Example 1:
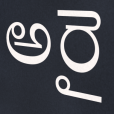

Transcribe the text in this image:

అరై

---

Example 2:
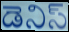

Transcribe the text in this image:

డెనిస్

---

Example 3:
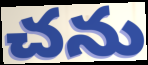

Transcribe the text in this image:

చను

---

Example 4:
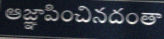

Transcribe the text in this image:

ఆజ్ఞాపించినదంతా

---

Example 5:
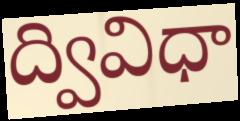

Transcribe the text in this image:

ద్వివిధా